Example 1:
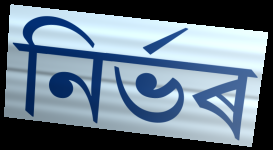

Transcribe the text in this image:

নিৰ্ভৰ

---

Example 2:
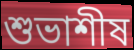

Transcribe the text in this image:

শুভাশীষ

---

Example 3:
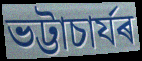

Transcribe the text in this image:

ভট্টাচাৰ্যৰ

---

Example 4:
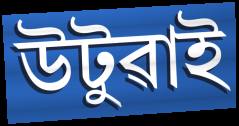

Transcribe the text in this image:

উটুৱাই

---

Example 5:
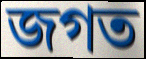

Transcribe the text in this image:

জগত